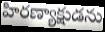
హిరణ్యాక్షుడను